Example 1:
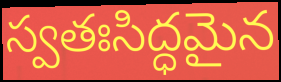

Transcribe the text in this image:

స్వతఃసిద్ధమైన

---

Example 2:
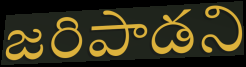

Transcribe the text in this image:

జరిపాడని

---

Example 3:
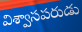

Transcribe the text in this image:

విశ్వాసపరుడు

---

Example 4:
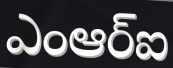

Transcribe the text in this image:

ఎంఆర్ఐ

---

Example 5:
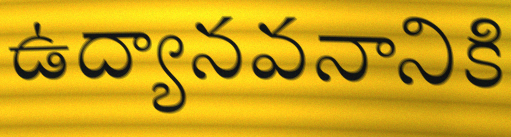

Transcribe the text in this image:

ఉద్యానవనానికి